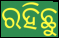
ରହିଛୁ